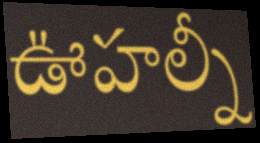
ఊహల్నీ